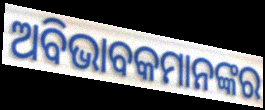
ଅବିଭାବକମାନଙ୍କର